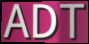
ADT